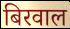
बिरवाल